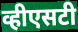
व्हीएसटी